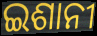
ଇଶାନୀ